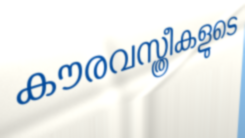
കൗരവസ്ത്രീകളുടെ